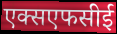
एक्सएफसीई